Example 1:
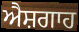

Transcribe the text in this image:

ਐਸ਼ਗਾਹ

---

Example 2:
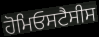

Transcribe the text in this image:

ਹੋਮਿਓਸਟੈਸੀਸ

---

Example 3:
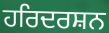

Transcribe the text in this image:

ਹਰਿਦਰਸ਼ਨ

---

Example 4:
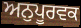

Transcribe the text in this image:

ਅਨੁਪੂਰਵਕ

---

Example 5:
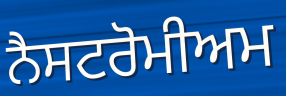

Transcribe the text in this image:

ਨੈਸਟਰੋਮੀਅਮ